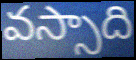
వస్సాది